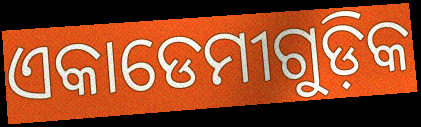
ଏକାଡେମୀଗୁଡ଼ିକ